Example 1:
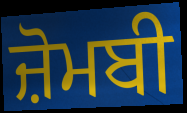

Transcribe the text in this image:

ਜ਼ੋਮਬੀ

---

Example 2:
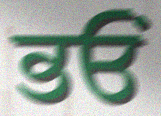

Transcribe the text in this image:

ਭਓਂ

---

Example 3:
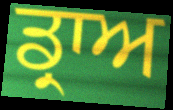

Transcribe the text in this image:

ਡ੍ਰਾਅ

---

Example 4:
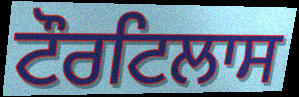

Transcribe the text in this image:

ਟੌਰਟਿਲਾਸ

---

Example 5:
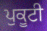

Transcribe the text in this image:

ਪੁਕੂਟੀ